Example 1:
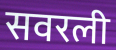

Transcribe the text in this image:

सवरली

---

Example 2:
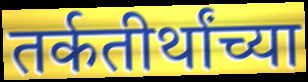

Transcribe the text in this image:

तर्कतीर्थांच्या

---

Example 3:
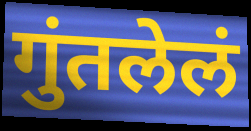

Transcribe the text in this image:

गुंतलेलं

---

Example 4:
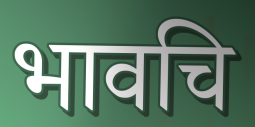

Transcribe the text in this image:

भावचि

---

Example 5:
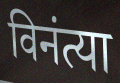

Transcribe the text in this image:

विनंत्या